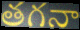
తగనా